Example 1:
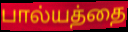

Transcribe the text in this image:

பால்யத்தை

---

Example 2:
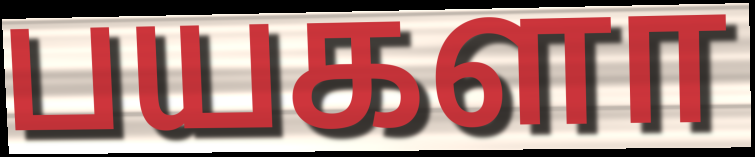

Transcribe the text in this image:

பயகளா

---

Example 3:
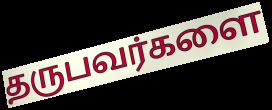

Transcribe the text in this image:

தருபவர்களை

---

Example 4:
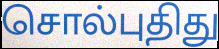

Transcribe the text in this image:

சொல்புதிது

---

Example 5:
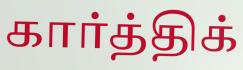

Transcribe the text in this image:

கார்த்திக்